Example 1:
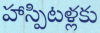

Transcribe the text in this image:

హాస్పిటళ్లకు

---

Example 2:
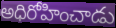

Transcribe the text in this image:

అధిరోహించాడు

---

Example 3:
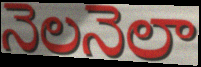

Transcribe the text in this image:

నెలనెలా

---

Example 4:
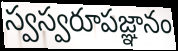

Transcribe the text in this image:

స్వస్వరూపజ్ఞానం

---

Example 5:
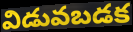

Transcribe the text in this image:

విడువబడక